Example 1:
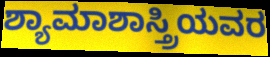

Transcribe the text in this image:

ಶ್ಯಾಮಾಶಾಸ್ತ್ರಿಯವರ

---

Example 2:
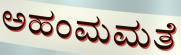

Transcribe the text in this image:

ಅಹಂಮಮತೆ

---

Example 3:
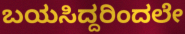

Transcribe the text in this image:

ಬಯಸಿದ್ದರಿಂದಲೇ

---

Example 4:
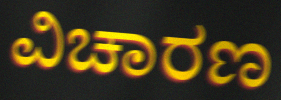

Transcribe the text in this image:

ವಿಚಾರಣ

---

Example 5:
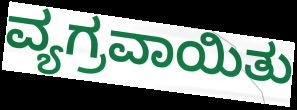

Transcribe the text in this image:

ವ್ಯಗ್ರವಾಯಿತು